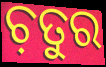
ଚ଼ତୁର